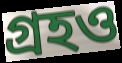
গ্রহও